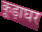
कूड़ाघर